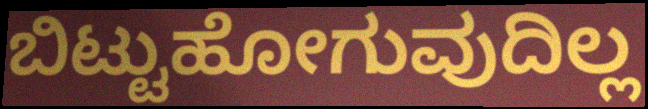
ಬಿಟ್ಟುಹೋಗುವುದಿಲ್ಲ